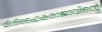
മിശിഹൈകരാജാവിന്റെ